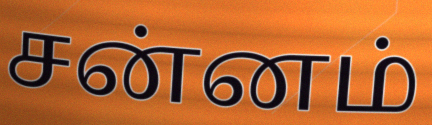
சன்னம்